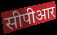
सीपीआर